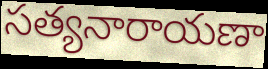
సత్యనారాయణా